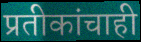
प्रतीकांचाही